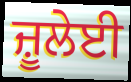
ਜ਼ੂਲੇਈ